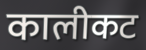
कालीकट